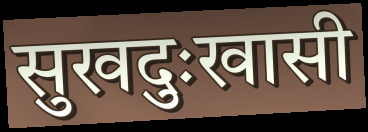
सुखदुःखासी